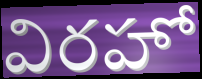
విరహో